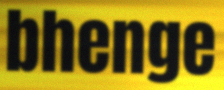
bhenge